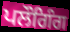
ਪਲੌਗਿੰਗ